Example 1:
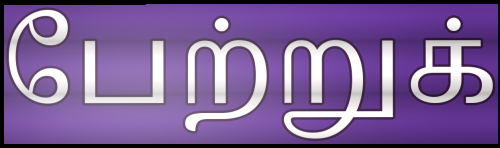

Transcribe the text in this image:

பேற்றுக்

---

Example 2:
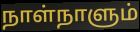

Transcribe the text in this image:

நாள்நாளும்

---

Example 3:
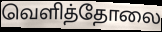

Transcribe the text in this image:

வெளித்தோலை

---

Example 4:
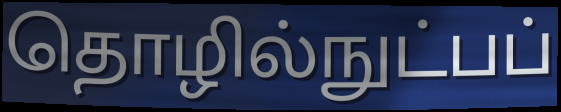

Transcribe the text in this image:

தொழில்நுட்பப்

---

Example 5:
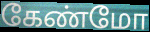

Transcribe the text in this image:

கேண்மோ